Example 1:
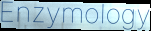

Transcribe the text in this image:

Enzymology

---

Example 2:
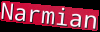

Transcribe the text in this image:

Narmian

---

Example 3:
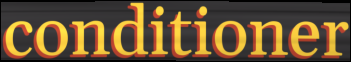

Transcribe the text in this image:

conditioner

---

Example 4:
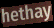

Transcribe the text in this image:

hethay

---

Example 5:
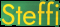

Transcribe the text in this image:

Steffi